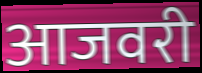
आजवरी